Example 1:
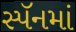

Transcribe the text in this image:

સ્પૅનમાં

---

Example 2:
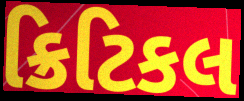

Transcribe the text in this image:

ક્રિટિકલ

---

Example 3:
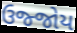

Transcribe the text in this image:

ઉજ્જોય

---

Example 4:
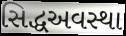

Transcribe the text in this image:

સિદ્ધઅવસ્થા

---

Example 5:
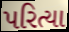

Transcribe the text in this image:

પરિત્યા